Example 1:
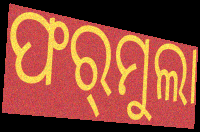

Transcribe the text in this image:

ଫର୍‌ମୁଲା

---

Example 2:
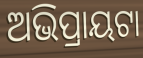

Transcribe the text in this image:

ଅଭିପ୍ରାୟଟା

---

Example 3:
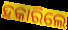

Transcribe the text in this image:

ହକାରିଲେ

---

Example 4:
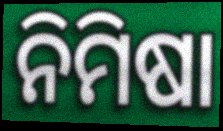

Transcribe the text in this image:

ନିମିଷା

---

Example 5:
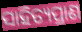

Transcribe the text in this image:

ସାହିତ୍ୟପ୍ରାଣ